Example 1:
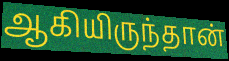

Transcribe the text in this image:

ஆகியிருந்தான்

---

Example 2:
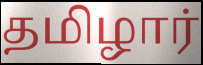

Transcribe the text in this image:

தமிழார்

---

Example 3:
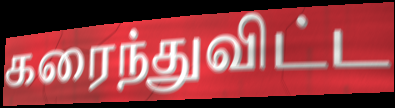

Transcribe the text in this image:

கரைந்துவிட்ட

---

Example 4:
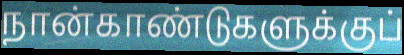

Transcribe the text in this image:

நான்காண்டுகளுக்குப்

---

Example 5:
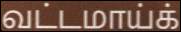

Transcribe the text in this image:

வட்டமாய்க்